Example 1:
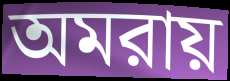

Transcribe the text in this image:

অমরায়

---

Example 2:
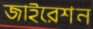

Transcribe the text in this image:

জাইরেশন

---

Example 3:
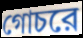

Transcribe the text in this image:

গোচরে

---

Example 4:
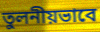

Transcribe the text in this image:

তুলনীয়ভাবে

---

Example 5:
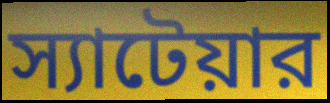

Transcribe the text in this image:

স্যাটেয়ার